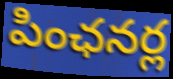
పింఛనర్ల